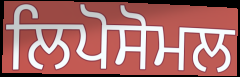
ਲਿਪੋਸੋਮਲ